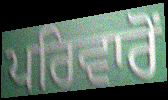
ਪਰਿਵਾਰੋਂ